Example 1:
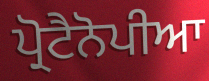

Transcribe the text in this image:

ਪ੍ਰੋਟੈਨੋਪੀਆ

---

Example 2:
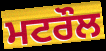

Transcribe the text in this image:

ਮਟਰੌਲ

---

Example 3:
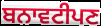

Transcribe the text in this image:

ਬਨਾਵਟੀਪਣ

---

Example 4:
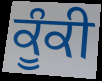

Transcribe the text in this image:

ਕੂੰਕੀ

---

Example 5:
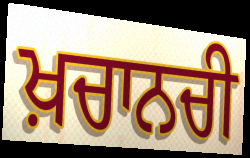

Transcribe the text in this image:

ਖ਼ਚਾਨਚੀ